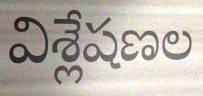
విశ్లేషణల